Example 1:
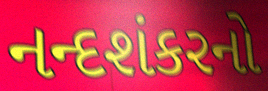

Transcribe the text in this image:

નન્દશંકરનો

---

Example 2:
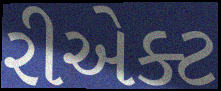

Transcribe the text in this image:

રીએક્ટ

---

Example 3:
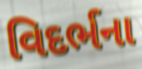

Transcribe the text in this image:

વિદર્ભના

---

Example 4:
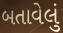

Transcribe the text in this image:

બતાવેલું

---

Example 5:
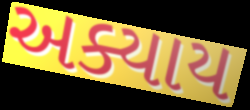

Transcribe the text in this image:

અક્યાય